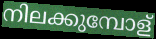
നിലക്കുമ്പോള്